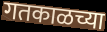
गतकाळच्या